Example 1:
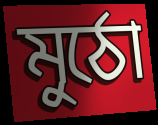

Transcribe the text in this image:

মুঠো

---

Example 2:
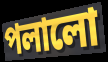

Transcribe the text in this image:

পলালো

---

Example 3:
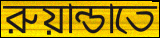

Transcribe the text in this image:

রুয়ান্ডাতে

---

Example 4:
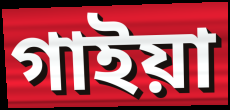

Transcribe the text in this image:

গাইয়া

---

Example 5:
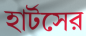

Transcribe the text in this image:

হার্টসের